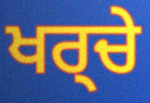
ਖਰ੍ਚੇ